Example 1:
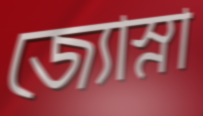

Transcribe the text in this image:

জ্যোস্না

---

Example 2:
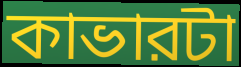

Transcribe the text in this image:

কাভারটা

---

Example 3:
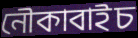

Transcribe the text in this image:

নৌকাবাইচ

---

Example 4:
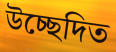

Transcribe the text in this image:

উচ্ছেদিত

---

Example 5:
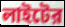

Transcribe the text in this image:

লাইটের